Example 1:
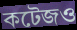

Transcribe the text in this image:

কটেজও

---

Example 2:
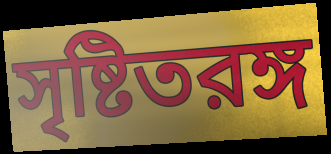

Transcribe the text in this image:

সৃষ্টিতরঙ্গ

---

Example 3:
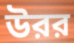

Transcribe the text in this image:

উরর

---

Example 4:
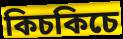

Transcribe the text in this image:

কিচকিচে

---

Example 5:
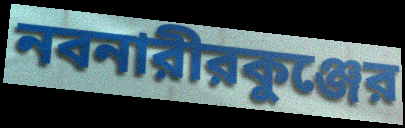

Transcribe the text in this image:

নবনারীরকুঞ্জের